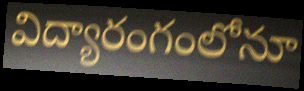
విద్యారంగంలోనూ